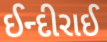
ઈન્દીરાઈ